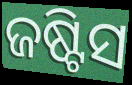
ଜଷ୍ଟିସ